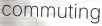
commuting